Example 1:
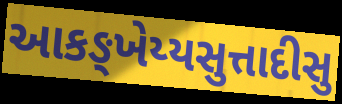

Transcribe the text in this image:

આકઙ્ખેય્યસુત્તાદીસુ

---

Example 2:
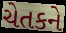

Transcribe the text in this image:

ચેતકને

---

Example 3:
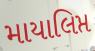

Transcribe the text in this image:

માયાલિપ્ત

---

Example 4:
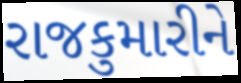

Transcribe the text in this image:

રાજકુમારીને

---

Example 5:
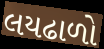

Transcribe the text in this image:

લયઢાળો